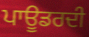
ਪਾਊਡਰਦੀ